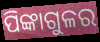
ପିଙ୍କାଗୁଳର